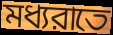
মধ্যরাতে